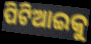
ପିଟିଆଇକୁ